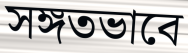
সঙ্গতভাবে